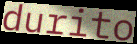
durito